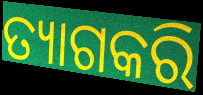
ତ୍ୟାଗକରି